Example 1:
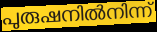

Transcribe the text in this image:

പുരുഷനിൽനിന്ന്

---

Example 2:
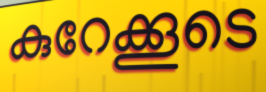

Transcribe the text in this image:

കുറേക്കൂടെ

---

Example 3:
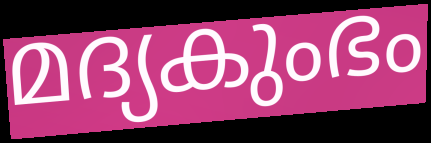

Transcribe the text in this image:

മദ്യകുംഭം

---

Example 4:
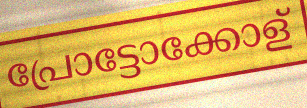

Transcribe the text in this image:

പ്രോട്ടോക്കോള്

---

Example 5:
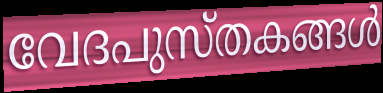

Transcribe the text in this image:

വേദപുസ്തകങ്ങൾ